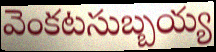
వెంకటసుబ్బయ్య